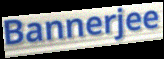
Bannerjee